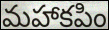
మహాకపిం